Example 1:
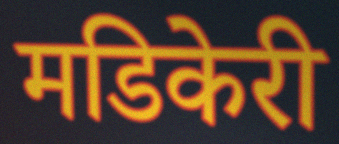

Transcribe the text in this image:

मडिकेरी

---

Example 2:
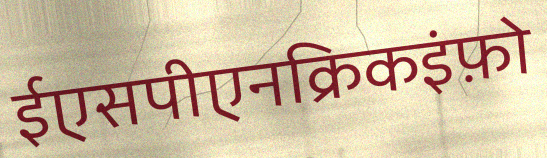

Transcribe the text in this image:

ईएसपीएनक्रिकइंफ़ो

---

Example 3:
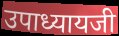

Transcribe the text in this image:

उपाध्यायजी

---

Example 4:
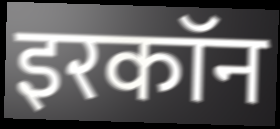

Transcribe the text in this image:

इरकॉन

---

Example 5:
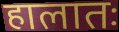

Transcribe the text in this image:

हालातः